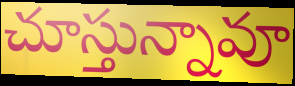
చూస్తున్నావూ